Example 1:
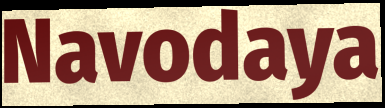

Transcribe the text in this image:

Navodaya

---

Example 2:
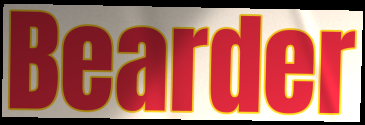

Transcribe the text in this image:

Bearder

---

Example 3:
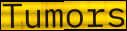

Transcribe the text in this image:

Tumors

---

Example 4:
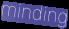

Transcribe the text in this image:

minding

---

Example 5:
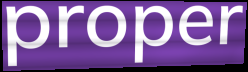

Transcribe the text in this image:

proper